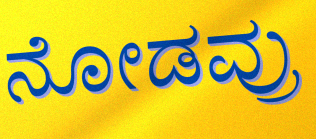
ನೋಡವ್ರು